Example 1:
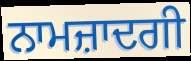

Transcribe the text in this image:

ਨਾਮਜ਼ਾਦਗੀ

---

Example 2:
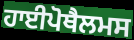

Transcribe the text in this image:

ਹਾਈਪੋਥੈਲਮਸ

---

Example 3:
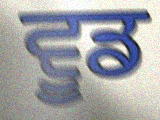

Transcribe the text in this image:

ਵੂਡ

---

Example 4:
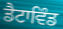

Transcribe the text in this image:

ਡੈਟਾਵਿੰਡ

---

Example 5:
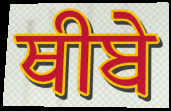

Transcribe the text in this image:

ਥੀਬੇ